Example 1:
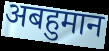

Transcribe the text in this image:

अबहुमान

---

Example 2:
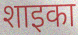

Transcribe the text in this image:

शाइका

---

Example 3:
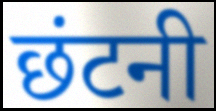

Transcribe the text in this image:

छंटनी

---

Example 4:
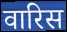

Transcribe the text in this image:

वारिस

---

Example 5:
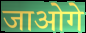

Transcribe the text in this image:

जाओगे